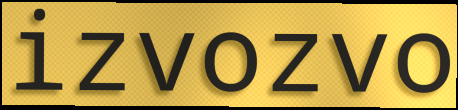
izvozvo